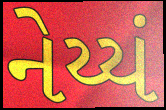
નેય્યં